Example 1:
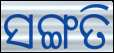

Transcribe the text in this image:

ସଙ୍ଗତି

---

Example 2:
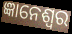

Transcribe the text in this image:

ଜ୍ଞାନେଶ୍ୱର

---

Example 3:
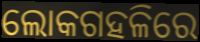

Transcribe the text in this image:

ଲୋକଗହଳିରେ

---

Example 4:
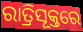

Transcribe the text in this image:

ରାତ୍ରିସୂକ୍ତରେ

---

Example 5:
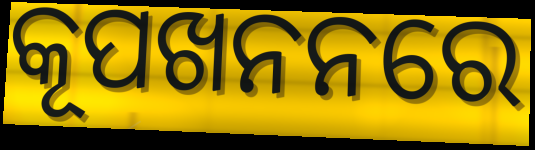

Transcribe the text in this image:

କୂପଖନନରେ